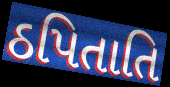
ઠપિતાતિ